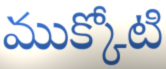
ముక్కోటి